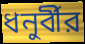
ধনুর্বীর